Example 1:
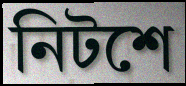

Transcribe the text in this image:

নিটশে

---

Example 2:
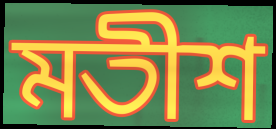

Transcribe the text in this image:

মতীশ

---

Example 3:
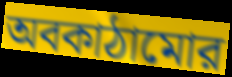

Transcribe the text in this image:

অবকাঠামোর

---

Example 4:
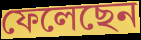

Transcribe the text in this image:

ফেলেছেন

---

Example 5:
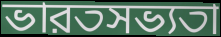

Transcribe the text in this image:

ভারতসভ্যতা